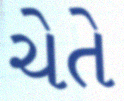
ચેતે